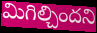
మిగిల్చిందని